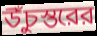
উঁচুস্তরের